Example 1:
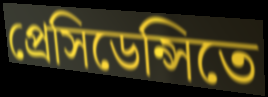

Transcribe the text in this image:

প্রেসিডেন্সিতে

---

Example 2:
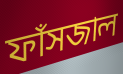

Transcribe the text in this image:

ফাঁসজাল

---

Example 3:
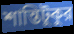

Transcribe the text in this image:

শান্তিটুকুর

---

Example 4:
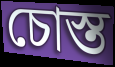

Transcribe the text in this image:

চোস্ত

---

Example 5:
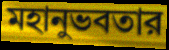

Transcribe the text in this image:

মহানুভবতার